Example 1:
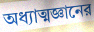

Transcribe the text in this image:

অধ্যাত্মজ্ঞানের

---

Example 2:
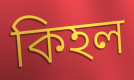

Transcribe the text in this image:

কিহল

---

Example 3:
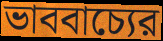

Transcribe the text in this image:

ভাববাচ্যের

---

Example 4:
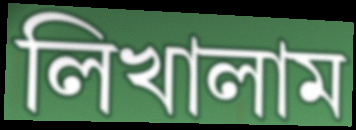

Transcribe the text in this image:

লিখালাম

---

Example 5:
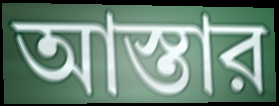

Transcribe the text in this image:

আস্তার